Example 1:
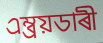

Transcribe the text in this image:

এম্ব্ৰয়ডাৰী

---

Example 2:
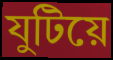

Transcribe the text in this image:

যুটিয়ে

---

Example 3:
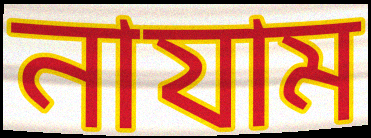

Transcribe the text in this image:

নাযাম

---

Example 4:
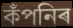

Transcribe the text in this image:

কঁপনিৰ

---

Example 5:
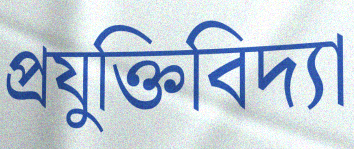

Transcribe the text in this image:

প্ৰযুক্তিবিদ্যা